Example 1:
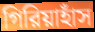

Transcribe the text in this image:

গিরিয়াহাঁস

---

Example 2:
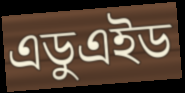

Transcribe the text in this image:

এডুএইড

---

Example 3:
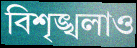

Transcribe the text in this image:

বিশৃঙ্খলাও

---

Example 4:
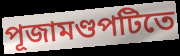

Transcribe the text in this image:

পূজামণ্ডপটিতে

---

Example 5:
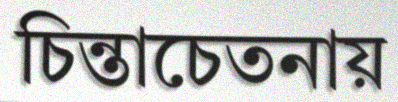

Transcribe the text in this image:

চিন্তাচেতনায়